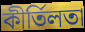
কীৰ্তিলতা